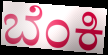
ಬೆಂಕಿ